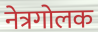
नेत्रगोलक